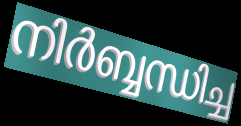
നിർബ്ബന്ധിച്ച